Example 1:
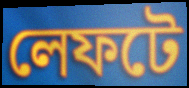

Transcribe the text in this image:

লেফটে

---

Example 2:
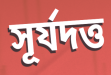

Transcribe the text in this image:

সূর্যদত্ত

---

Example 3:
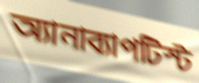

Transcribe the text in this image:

অ্যানাব্যাপটিস্ট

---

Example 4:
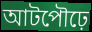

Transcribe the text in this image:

আটপৌঢ়ে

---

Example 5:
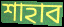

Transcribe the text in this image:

শাহাব